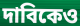
দাবিকেও